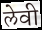
लेवी